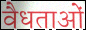
वैधताओं